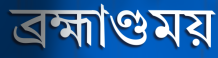
ব্রহ্মাণ্ডময়